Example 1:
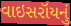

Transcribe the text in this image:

વાઇસરૉયનું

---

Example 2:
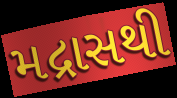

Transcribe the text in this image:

મદ્રાસથી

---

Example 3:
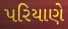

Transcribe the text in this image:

પરિયાણે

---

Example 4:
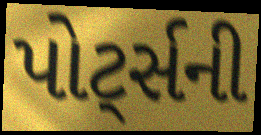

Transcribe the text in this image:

પોર્ટ્સની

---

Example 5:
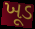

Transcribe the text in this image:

ખૂડ